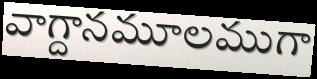
వాగ్దానమూలముగా